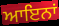
ਆਇਨਾਂ